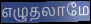
எழுதலாமே